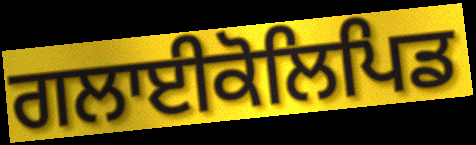
ਗਲਾਈਕੋਲਿਪਿਡ